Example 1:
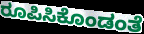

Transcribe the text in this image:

ರೂಪಿಸಿಕೊಂಡಂತೆ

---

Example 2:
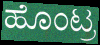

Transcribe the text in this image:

ಹೊಂಟ್ರ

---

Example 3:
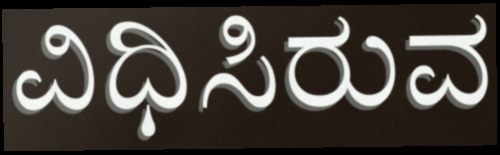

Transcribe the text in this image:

ವಿಧಿಸಿರುವ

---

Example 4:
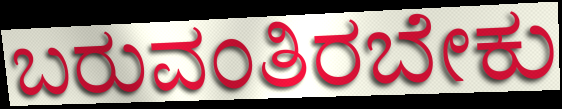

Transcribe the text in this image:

ಬರುವಂತಿರಬೇಕು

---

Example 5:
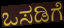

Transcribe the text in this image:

ಒಸಡಿಗೆ